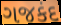
ગજકંદ